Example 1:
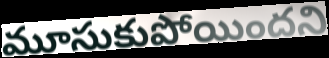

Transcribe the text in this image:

మూసుకుపోయిందని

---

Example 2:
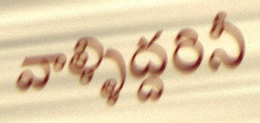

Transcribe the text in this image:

వాళ్ళిద్దరినీ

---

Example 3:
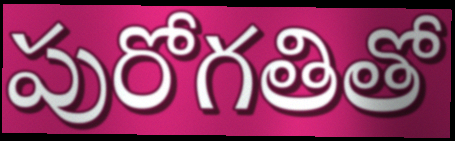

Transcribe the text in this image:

పురోగతితో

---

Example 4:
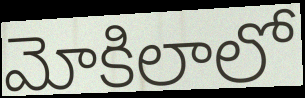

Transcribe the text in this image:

మోకిలాలో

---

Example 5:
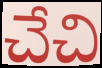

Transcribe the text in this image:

చేచి